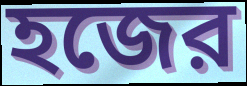
হজের